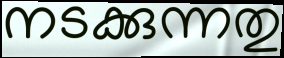
നടക്കുന്നതു